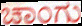
ಚಾಂಗು